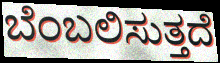
ಬೆಂಬಲಿಸುತ್ತದೆ